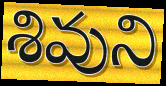
శివుని